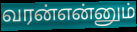
வரன்என்னும்